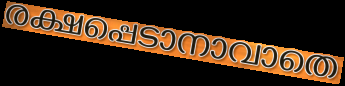
രക്ഷപ്പെടാനാവാതെ